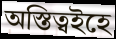
অস্তিত্বইহে